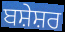
ਬਸ਼ੇਸ਼ਰ